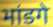
भांडगे